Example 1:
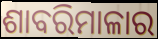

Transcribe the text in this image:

ଶାବରିମାଳାର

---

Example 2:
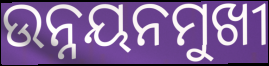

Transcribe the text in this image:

ଉନ୍ନୟନମୁଖୀ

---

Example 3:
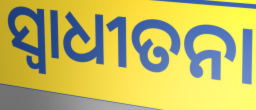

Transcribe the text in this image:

ସ୍ବାଧୀତନା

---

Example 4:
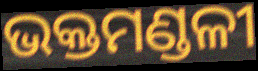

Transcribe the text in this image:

ଭକ୍ତମଣ୍ଡଳୀ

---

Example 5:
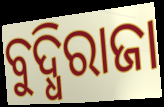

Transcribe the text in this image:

ବୁଦ୍ଧିରାଜା